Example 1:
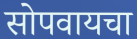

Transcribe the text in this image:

सोपवायचा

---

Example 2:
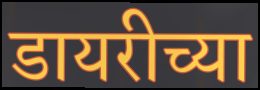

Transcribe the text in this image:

डायरीच्या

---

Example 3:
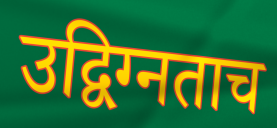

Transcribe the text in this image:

उद्विग्नताच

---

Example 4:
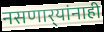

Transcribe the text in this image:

नसणार्‍यांनाही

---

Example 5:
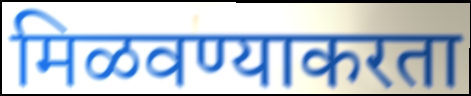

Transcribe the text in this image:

मिळवण्याकरता